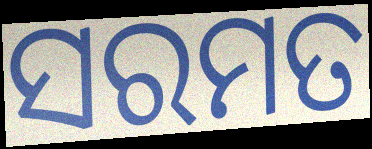
ସରମତ